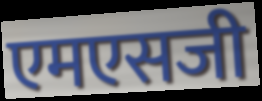
एमएसजी